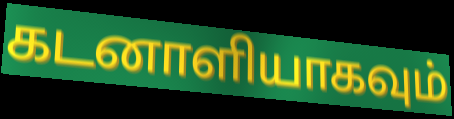
கடனாளியாகவும்